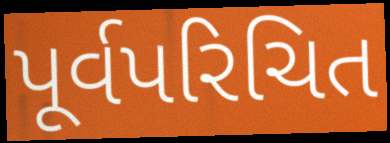
પૂર્વપરિચિત